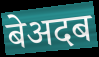
बेअदब